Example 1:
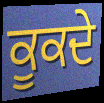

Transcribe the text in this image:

ਕੂਕਦੇ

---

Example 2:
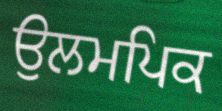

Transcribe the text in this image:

ਉਲਮਪਿਕ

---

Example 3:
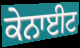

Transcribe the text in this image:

ਕੇਨਾਈਟ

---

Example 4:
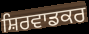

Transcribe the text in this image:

ਸ਼ਿਰਵਾਡਕਰ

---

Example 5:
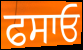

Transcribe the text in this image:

ਫਸਾਓ